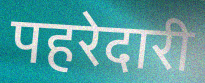
पहरेदारी